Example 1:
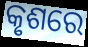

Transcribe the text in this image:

କୃଶରେ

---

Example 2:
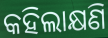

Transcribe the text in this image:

କହିଲାକ୍ଷଣି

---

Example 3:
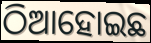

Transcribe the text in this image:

ଠିଆହୋଇଛ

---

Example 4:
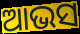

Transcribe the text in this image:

ଆଭସ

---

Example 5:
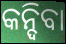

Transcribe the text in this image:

କନ୍ଦିବା